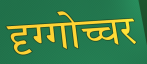
दृग्गोच्चर